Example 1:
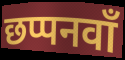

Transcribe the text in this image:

छप्पनवाँ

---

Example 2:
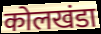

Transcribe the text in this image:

कोलखंडा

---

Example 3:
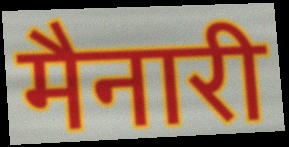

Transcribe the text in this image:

मैनारी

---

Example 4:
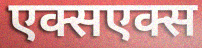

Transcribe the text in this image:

एक्सएक्स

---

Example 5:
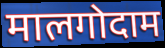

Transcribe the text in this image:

मालगोदाम